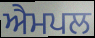
ਐਮਪਲ